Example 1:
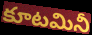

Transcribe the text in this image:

కూటమినీ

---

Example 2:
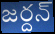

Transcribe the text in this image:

జర్దన్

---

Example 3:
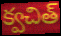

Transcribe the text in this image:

క్వచిత్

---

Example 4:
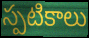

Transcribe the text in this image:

స్పటికాలు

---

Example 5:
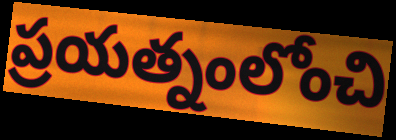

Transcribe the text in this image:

ప్రయత్నంలోంచి